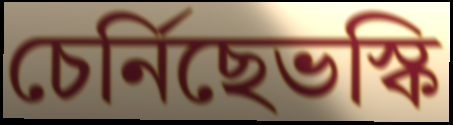
চেৰ্নিছেভস্কি